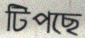
টিপছে